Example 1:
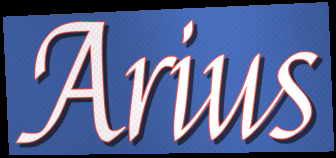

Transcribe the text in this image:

Arius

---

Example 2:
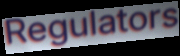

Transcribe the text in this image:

Regulators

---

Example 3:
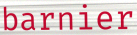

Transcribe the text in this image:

barnier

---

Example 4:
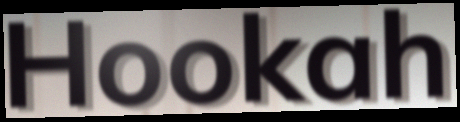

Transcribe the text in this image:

Hookah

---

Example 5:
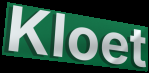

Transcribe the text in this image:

Kloet